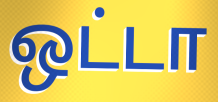
ஒட்டா